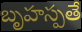
బృహస్పతే